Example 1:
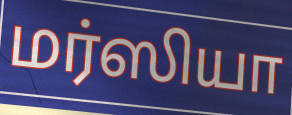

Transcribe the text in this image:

மர்ஸியா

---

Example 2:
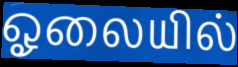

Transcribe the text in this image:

ஓலையில்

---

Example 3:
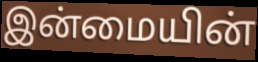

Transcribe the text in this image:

இன்மையின்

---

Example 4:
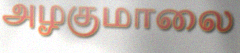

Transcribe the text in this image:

அழகுமாலை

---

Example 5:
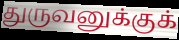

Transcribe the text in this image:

துருவனுக்குக்